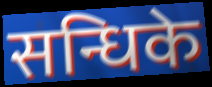
सन्धिके